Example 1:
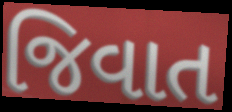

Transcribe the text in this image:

જિવાત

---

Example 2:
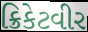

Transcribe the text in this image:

ક્રિકેટવીર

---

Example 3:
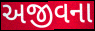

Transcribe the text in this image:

અજીવના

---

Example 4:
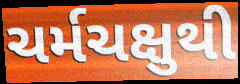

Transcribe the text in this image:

ચર્મચક્ષુથી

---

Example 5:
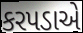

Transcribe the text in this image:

કરપડાએ